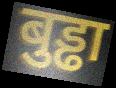
बुड्ढा